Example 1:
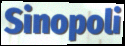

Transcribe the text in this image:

Sinopoli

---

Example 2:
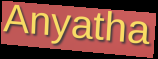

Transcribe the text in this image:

Anyatha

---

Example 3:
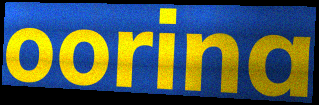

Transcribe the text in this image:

oorina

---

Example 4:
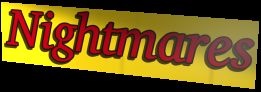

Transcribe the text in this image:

Nightmares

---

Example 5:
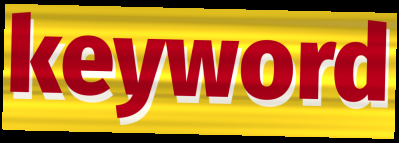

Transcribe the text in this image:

keyword